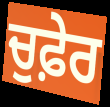
ਚੁਫ਼ੇਰ